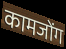
कामजोंग